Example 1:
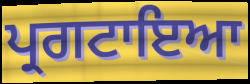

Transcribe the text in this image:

ਪ੍ਰਗਟਾਇਆ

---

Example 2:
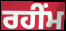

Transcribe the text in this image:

ਰਹੀਂਮ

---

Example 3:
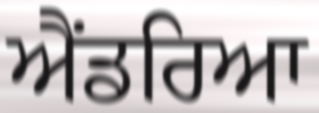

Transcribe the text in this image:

ਐਂਡਰਿਆ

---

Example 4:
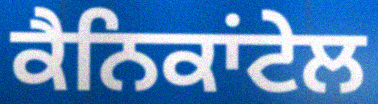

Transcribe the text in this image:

ਕੈਨਿਕਾਂਟੇਲ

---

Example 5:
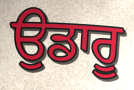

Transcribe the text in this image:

ਉਡਾਰੂ